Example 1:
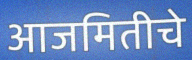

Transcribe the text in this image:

आजमितीचे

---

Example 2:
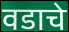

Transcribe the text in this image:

वडाचे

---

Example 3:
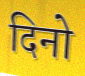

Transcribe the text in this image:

दिनो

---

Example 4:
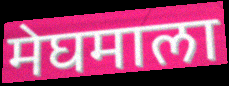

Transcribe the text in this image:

मेघमाला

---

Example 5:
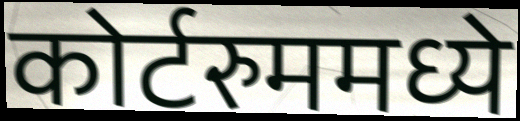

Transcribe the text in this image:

कोर्टरुममध्ये